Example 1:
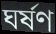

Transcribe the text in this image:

ঘর্ষণ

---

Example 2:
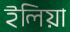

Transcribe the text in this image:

ইলিয়া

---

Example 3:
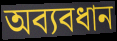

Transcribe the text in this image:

অব্যবধান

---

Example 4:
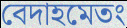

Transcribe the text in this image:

বেদাহমেতং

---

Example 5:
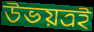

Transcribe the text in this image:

উভয়ত্রই